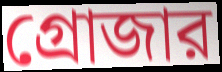
গ্রোজার